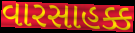
વારસાહક્ક